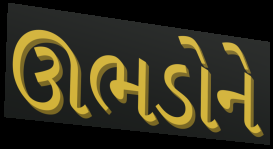
ઊભડોને